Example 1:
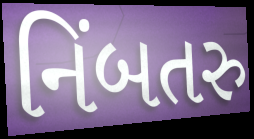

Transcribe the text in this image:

નિંબતરુ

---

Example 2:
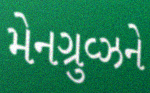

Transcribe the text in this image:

મેનગ્રુવ્ઝને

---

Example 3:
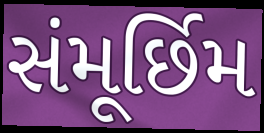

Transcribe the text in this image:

સંમૂર્છિમ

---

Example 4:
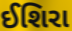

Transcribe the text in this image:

ઈશિરા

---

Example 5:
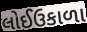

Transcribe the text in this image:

લોઈઉકાળા